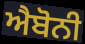
ਐਬੋਨੀ